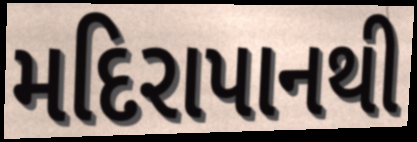
મદિરાપાનથી